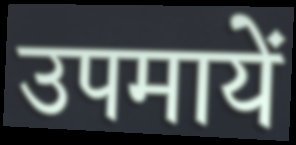
उपमायें